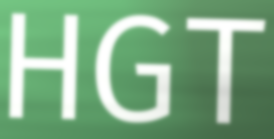
HGT